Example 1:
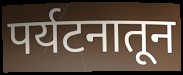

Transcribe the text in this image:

पर्यटनातून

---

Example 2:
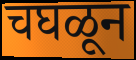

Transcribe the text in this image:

चघळून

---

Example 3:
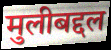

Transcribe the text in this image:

मुलीबद्दल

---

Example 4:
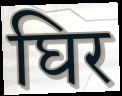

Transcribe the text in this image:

घिर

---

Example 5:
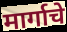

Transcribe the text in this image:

मार्गाचे